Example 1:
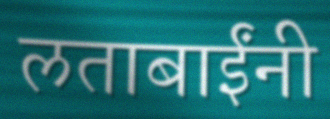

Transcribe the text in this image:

लताबाईंनी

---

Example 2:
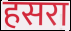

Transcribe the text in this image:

हसरा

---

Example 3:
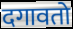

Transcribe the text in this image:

दगावतो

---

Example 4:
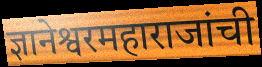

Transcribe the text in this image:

ज्ञानेश्वरमहाराजांची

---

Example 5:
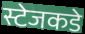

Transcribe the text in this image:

स्टेजकडे